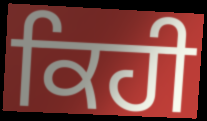
ਕਿਹੀ